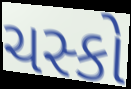
ચસ્કો